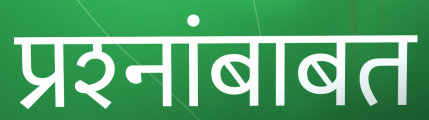
प्रश्‍नांबाबत